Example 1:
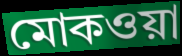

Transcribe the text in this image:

মোকওয়া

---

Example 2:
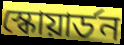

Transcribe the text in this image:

স্কোয়ার্ডন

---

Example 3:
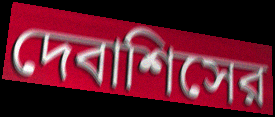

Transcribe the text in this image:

দেবাশিসের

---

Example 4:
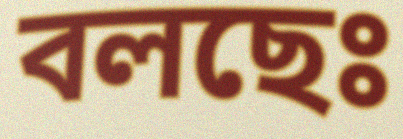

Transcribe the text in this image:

বলছেঃ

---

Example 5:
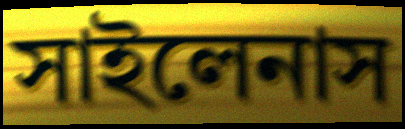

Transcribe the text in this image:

সাইলেনাস